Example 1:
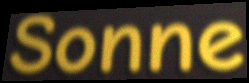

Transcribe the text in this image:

Sonne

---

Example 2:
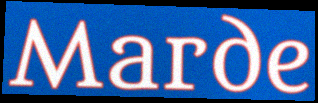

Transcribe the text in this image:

Marde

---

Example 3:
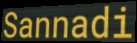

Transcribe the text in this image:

Sannadi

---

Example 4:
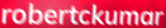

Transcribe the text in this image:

robertckumar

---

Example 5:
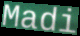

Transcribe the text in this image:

Madi